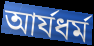
আর্যধর্ম